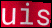
uis